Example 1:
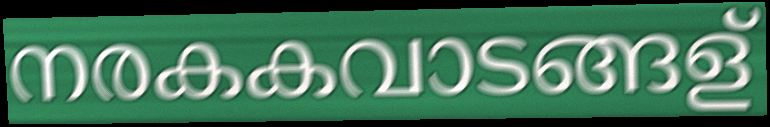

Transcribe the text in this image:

നരകകവാടങ്ങള്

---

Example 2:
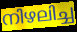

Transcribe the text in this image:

നിഴലിച്ച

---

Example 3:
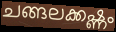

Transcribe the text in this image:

ചങ്ങലക്കഷ്ണം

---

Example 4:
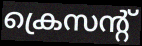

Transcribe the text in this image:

ക്രെസന്റ്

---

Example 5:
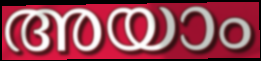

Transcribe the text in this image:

അയാം